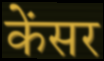
केंसर